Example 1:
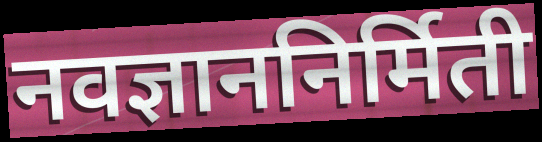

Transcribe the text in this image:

नवज्ञाननिर्मिती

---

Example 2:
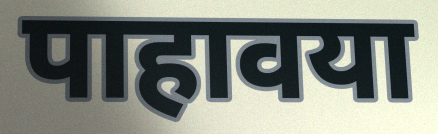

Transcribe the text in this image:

पाहावया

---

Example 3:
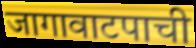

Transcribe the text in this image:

जागावाटपाची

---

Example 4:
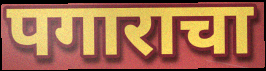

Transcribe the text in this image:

पगाराचा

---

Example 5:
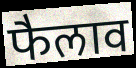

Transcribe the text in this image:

फैलाव